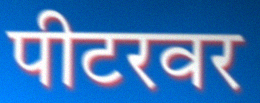
पीटरवर